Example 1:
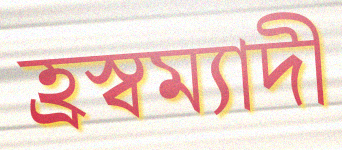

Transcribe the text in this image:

হ্ৰস্বম্যাদী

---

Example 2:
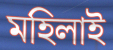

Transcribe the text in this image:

মহিলাই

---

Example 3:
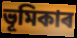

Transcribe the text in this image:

ভূমিকাৰ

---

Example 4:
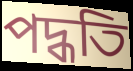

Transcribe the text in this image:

পদ্ধতি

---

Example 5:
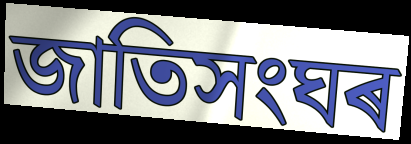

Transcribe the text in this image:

জাতিসংঘৰ